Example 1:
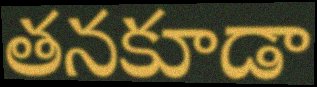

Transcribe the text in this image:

తనకూడా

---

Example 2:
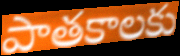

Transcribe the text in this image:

పాతకాలకు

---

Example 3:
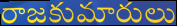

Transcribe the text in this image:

రాజకుమారులు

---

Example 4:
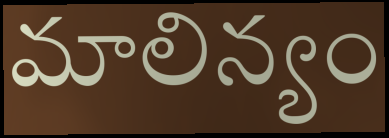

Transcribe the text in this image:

మాలిన్యం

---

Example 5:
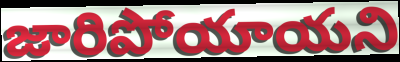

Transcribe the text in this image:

జారిపోయాయని